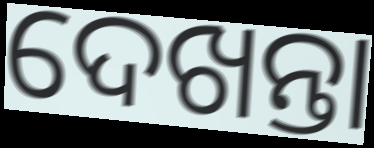
ଦେଖନ୍ତା